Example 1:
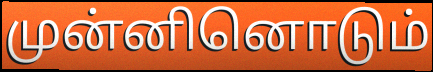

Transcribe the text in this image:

முன்னினொடும்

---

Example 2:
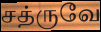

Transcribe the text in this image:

சத்ருவே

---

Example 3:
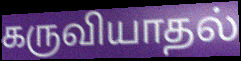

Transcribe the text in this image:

கருவியாதல்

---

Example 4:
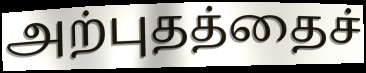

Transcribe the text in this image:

அற்புதத்தைச்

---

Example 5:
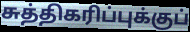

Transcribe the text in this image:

சுத்திகரிப்புக்குப்